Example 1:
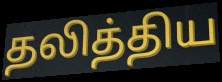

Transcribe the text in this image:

தலித்திய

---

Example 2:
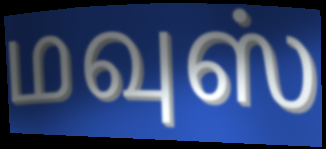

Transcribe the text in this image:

மவுஸ்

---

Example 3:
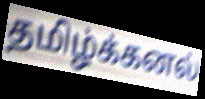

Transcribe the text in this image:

தமிழ்க்கனல்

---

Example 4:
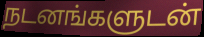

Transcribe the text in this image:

நடனங்களுடன்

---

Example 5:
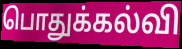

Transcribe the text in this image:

பொதுக்கல்வி